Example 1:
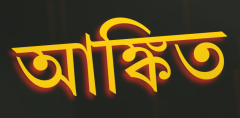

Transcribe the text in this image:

আঙ্কিত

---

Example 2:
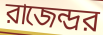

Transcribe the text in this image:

রাজেন্দ্রর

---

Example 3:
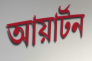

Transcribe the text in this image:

আয়ার্টন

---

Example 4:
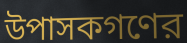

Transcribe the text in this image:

উপাসকগণের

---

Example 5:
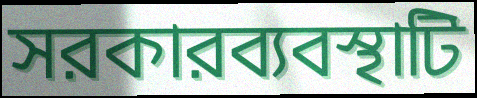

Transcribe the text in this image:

সরকারব্যবস্থাটি